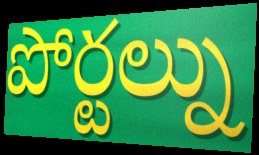
పోర్టల్ను